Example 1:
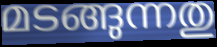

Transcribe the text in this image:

മടങ്ങുന്നതു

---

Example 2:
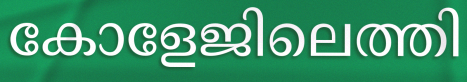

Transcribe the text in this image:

കോളേജിലെത്തി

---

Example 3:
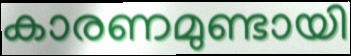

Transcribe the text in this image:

കാരണമുണ്ടായി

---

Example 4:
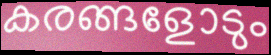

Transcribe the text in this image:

കരങ്ങളോടും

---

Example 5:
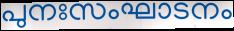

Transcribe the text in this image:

പുനഃസംഘാടനം